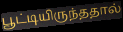
பூட்டியிருந்ததால்